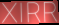
XIRR